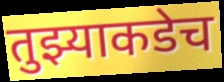
तुझ्याकडेच